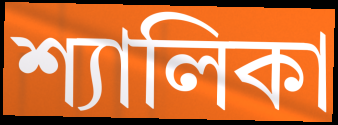
শ্যালিকা